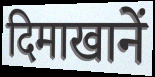
दिमाखानें